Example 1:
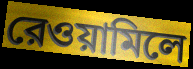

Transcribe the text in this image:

রেওয়ামিলে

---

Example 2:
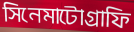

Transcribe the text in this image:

সিনেমাটোগ্রাফি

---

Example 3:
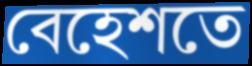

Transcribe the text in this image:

বেহেশতে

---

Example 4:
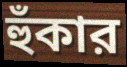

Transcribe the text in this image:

হুঁকার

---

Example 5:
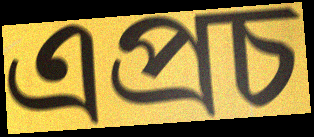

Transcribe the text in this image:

এপ্রচ